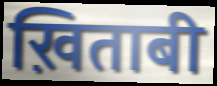
ख़िताबी